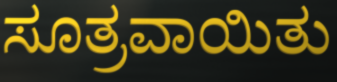
ಸೂತ್ರವಾಯಿತು